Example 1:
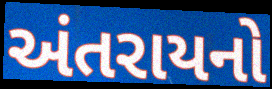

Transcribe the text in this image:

અંતરાયનો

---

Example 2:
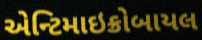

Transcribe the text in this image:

એન્ટિમાઇક્રોબાયલ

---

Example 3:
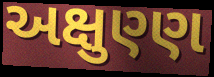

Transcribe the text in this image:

અક્ષુણ્ણ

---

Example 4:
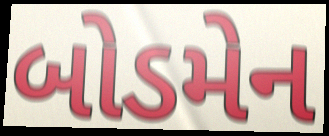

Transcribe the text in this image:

બોડમેન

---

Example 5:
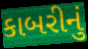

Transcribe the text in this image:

કાબરીનું